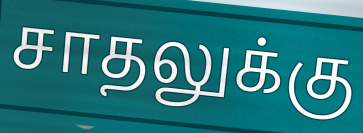
சாதலுக்கு